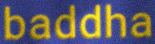
baddha